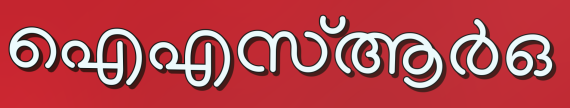
ഐഎസ്ആർഒ